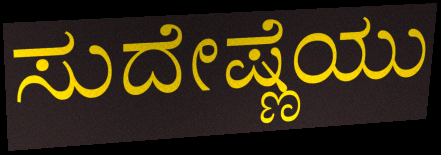
ಸುದೇಷ್ಣೆಯು